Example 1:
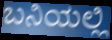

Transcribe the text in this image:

ಬನಿಯಲ್ಲಿ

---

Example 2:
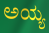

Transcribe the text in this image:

ಅಯ್ಯ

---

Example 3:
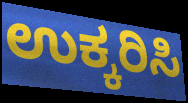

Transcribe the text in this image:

ಉಕ್ಕರಿಸಿ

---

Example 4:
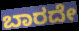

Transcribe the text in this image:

ಬಾರದೇ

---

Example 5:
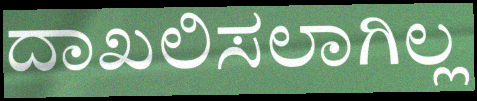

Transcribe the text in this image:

ದಾಖಲಿಸಲಾಗಿಲ್ಲ